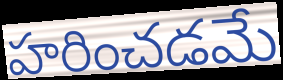
హరించడమే